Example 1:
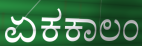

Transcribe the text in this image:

ಏಕಕಾಲಂ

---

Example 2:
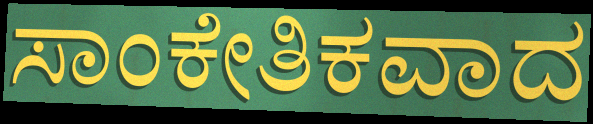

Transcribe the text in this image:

ಸಾಂಕೇತಿಕವಾದ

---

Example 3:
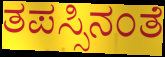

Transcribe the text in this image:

ತಪಸ್ಸಿನಂತೆ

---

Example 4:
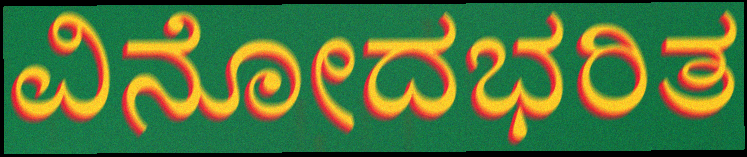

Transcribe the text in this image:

ವಿನೋದಭರಿತ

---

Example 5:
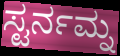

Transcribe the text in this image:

ಸ್ಟರ್ನಮ್ನ